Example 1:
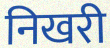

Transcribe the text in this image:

निखरी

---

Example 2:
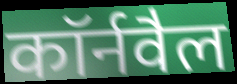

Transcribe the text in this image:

कॉर्नवैल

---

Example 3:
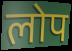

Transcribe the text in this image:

लोप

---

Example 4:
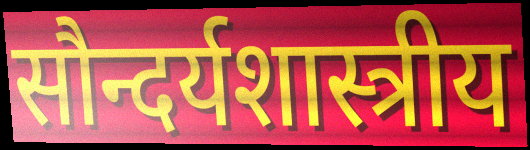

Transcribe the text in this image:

सौन्दर्यशास्त्रीय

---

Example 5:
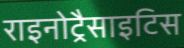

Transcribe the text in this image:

राइनोट्रैसाइटिस